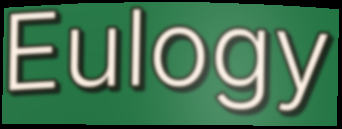
Eulogy